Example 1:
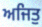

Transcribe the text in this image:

ਅਜਿਤੁ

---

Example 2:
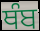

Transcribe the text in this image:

ਥੰਬ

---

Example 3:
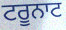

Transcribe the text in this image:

ਟਰੂਨਾਟ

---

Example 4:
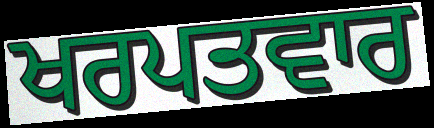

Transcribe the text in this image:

ਖਰਪਤਵਾਰ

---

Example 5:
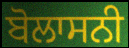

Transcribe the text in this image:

ਬੋਲਾਸਨੀ